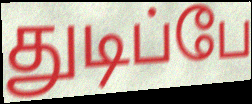
துடிப்பே